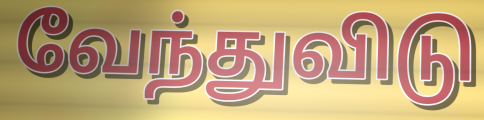
வேந்துவிடு